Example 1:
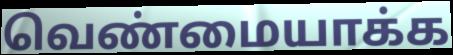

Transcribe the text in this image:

வெண்மையாக்க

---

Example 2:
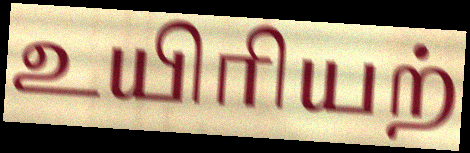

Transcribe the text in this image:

உயிரியற்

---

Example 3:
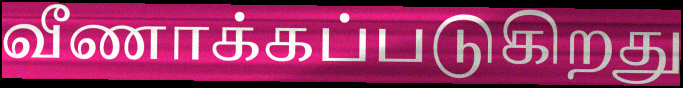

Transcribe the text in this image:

வீணாக்கப்படுகிறது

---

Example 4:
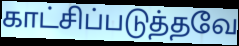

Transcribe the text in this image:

காட்சிப்படுத்தவே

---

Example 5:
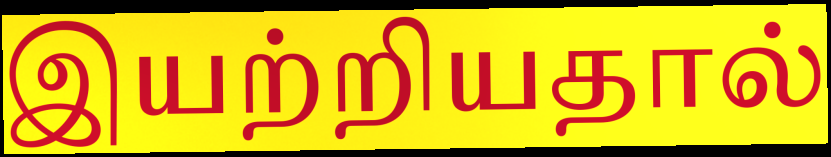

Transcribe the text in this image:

இயற்றியதால்